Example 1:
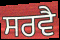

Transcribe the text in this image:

ਸਰਵੈ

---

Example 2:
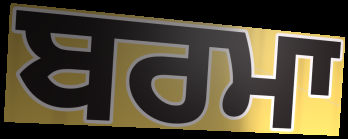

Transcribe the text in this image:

ਬਰਮਾ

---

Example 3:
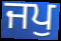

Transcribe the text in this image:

ਜਪੁ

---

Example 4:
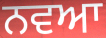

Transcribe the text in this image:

ਨਵਆ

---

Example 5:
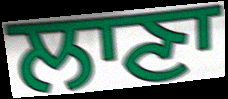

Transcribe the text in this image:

ਲਾਣਾ